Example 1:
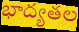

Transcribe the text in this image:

భాద్యతల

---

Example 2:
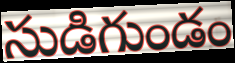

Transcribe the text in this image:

సుడిగుండం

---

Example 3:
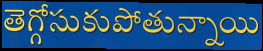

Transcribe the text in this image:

తెగ్గోసుకుపోతున్నాయి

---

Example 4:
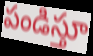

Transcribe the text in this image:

పండిస్తూ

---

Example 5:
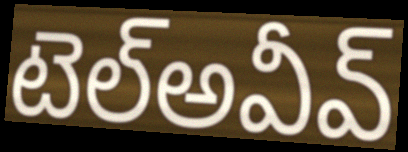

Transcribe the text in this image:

టెల్అవీవ్